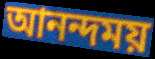
আনন্দময়